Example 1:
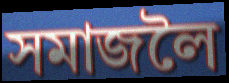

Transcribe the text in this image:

সমাজলৈ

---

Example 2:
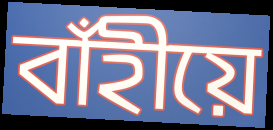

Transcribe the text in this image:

বাঁহীয়ে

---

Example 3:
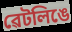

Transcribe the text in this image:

ৱেটলিঙে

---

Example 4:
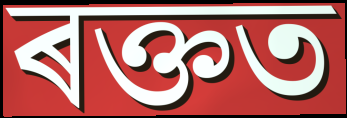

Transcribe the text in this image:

ৰক্তত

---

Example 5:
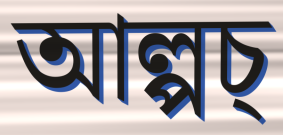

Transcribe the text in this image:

আল্পচ্